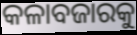
କଳାବଜାରକୁ